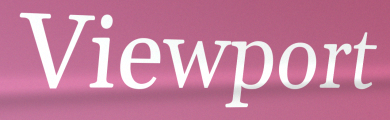
Viewport